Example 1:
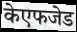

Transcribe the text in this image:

केएफजेड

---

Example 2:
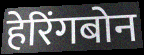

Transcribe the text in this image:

हेरिंगबोन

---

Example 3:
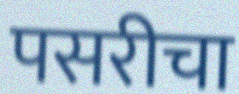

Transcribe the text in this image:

पसरीचा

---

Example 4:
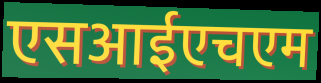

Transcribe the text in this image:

एसआईएचएम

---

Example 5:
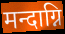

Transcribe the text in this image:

मन्दाग्नि